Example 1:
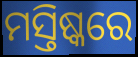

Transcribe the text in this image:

ମସ୍ତିଷ୍କରେ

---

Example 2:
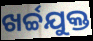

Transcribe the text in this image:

ଖର୍ଚ୍ଚଯୁକ୍ତ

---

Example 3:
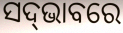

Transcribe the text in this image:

ସଦ୍‌ଭାବରେ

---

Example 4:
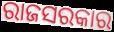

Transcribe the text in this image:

ରାଜସରକାର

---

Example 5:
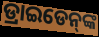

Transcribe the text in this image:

ଡ୍ରାଇଡେନ୍‌ଙ୍କ